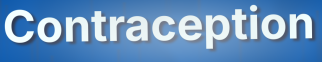
Contraception